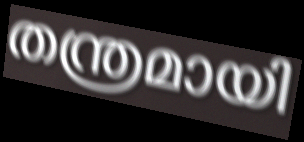
തന്ത്രമായി